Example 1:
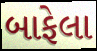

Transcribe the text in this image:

બાફેલા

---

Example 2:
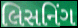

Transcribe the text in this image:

લિસનિંગ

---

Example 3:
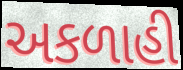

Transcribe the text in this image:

અકળાહી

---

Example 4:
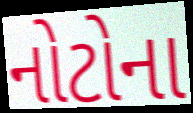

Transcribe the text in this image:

નોટોના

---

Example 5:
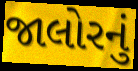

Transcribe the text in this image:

જાલોરનું